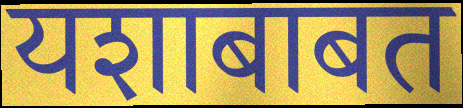
यशाबाबत